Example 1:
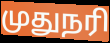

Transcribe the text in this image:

முதுநரி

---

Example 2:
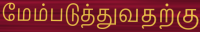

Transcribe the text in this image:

மேம்படுத்துவதற்கு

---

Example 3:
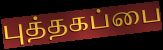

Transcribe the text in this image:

புத்தகப்பை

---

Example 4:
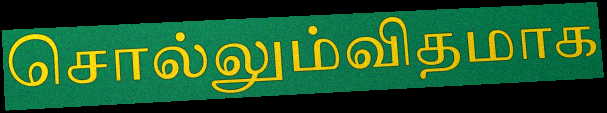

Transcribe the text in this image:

சொல்லும்விதமாக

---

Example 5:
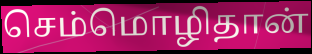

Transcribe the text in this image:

செம்மொழிதான்